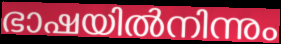
ഭാഷയിൽനിന്നും